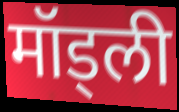
मॉड्ली